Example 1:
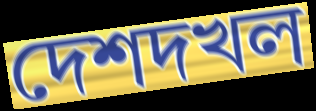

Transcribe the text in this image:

দেশদখল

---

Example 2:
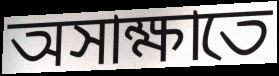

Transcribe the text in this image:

অসাক্ষাতে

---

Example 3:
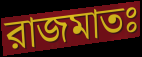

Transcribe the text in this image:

রাজমাতঃ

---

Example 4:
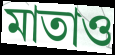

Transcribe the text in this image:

মাতাও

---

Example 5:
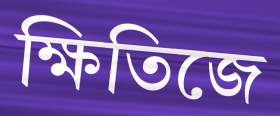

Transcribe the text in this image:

ক্ষিতিজে